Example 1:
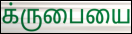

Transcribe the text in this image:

க்ருபையை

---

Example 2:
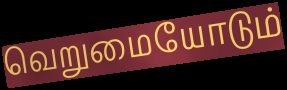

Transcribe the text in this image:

வெறுமையோடும்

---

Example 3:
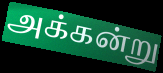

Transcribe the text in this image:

அக்கன்று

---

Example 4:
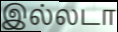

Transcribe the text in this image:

இல்லடா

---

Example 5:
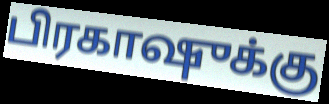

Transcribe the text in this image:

பிரகாஷுக்கு